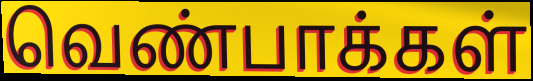
வெண்பாக்கள்